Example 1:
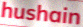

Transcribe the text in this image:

hushain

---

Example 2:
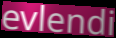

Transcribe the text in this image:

evlendi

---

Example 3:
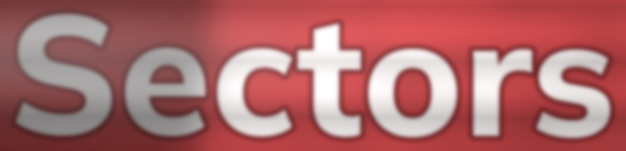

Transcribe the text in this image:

Sectors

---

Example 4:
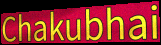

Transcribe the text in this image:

Chakubhai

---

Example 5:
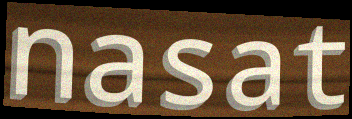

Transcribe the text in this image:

nasat